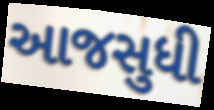
આજસુધી